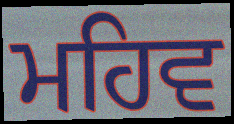
ਮਹਿਵ